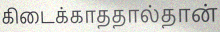
கிடைக்காததால்தான்